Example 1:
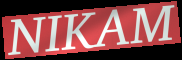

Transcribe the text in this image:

NIKAM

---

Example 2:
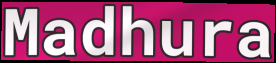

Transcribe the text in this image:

Madhura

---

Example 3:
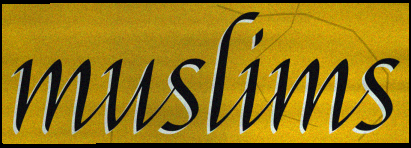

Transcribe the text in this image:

muslims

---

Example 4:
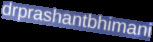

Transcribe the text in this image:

drprashantbhimani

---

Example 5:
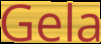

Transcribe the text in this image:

Gela